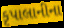
કૃપાલાનીના